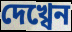
দেখ্বেন